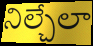
నిల్చేలా